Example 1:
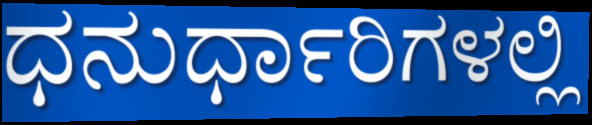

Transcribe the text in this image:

ಧನುರ್ಧಾರಿಗಳಲ್ಲಿ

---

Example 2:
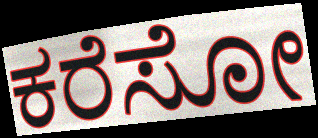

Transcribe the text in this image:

ಕರೆಸೋ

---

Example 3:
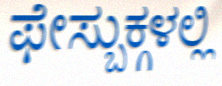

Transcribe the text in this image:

ಫೇಸ್ಬುಕ್ಗಳಲ್ಲಿ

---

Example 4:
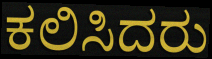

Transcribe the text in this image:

ಕಲಿಸಿದರು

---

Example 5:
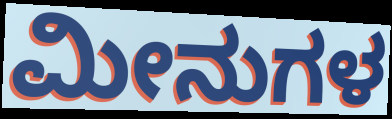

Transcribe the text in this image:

ಮೀನುಗಳ